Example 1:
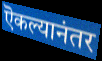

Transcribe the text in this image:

ऎकल्यानंतर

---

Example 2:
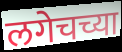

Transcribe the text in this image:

लगेचच्या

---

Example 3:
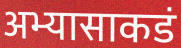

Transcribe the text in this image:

अभ्यासाकडं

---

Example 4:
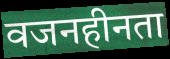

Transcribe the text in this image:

वजनहीनता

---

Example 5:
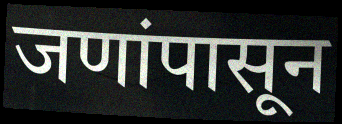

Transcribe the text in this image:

जणांपासून